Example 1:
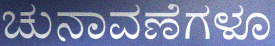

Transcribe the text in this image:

ಚುನಾವಣೆಗಳೂ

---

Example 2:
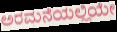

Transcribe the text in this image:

ಅರಮನೆಯಲ್ಲಿಯೇ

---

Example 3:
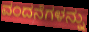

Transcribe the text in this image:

ವಂದನೆಗಳನ್ನು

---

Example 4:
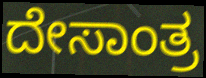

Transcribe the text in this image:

ದೇಸಾಂತ್ರ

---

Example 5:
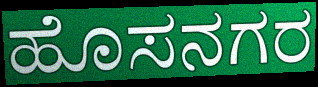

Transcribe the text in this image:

ಹೊಸನಗರ